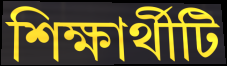
শিক্ষার্থীটি